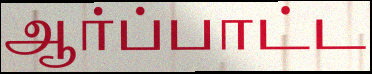
ஆர்ப்பாட்ட